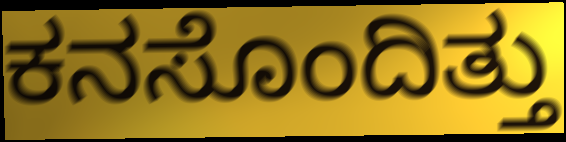
ಕನಸೊಂದಿತ್ತು